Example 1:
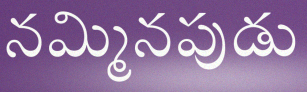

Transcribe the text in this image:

నమ్మినపుడు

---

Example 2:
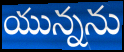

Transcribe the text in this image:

యున్నను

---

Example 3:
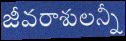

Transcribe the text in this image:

జీవరాశులన్నీ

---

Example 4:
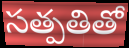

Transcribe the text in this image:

సత్పతితో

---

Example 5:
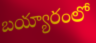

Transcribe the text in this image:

బయ్యారంలో